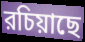
রচিয়াছে